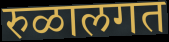
रुळालगत